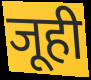
जूही